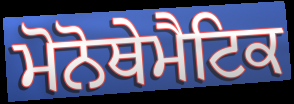
ਮੋਨੋਥੇਮੈਟਿਕ